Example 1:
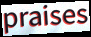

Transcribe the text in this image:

praises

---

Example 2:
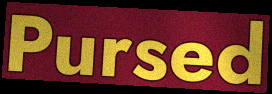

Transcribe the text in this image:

Pursed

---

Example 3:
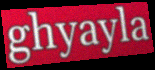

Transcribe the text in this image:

ghyayla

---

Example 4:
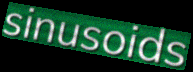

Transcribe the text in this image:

sinusoids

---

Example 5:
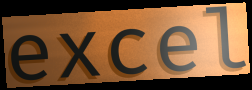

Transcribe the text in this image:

excel